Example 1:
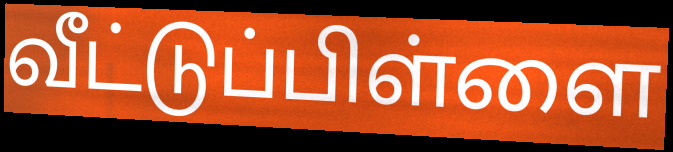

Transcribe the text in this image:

வீட்டுப்பிள்ளை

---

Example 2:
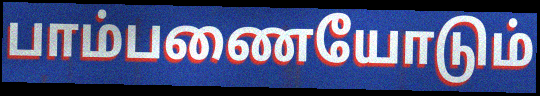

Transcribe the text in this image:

பாம்பணையோடும்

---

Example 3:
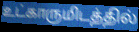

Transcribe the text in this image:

உட்காருமிடத்தில்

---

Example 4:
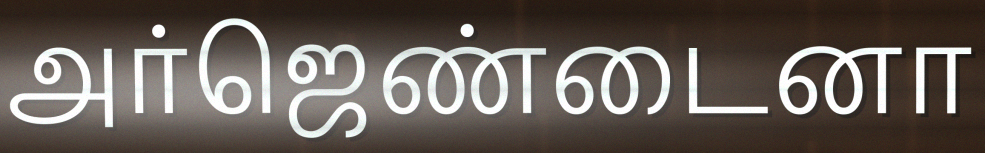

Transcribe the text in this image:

அர்ஜெண்டைனா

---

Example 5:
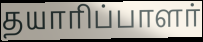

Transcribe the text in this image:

தயாரிப்பாளர்